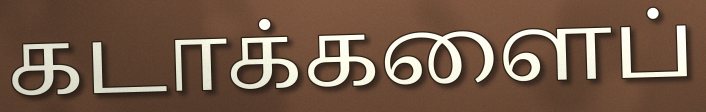
கடாக்களைப்